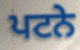
ਪਟਨੇ